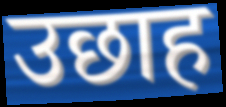
उछाह